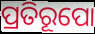
ପ୍ରତିରୂପୋ